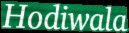
Hodiwala